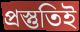
প্রস্তুতিই